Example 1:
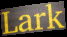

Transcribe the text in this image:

Lark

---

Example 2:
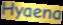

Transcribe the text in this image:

Hyaena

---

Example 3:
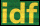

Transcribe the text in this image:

idf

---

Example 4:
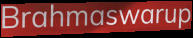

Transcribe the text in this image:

Brahmaswarup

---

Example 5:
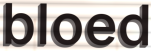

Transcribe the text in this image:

bloed